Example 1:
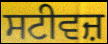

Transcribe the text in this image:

ਸਟੀਵਜ਼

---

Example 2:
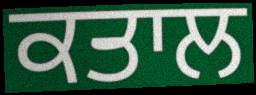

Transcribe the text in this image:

ਕਤਾਲ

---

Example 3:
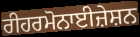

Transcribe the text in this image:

ਰੀਹਰਮੋਨਾਈਜ਼ੇਸ਼ਨ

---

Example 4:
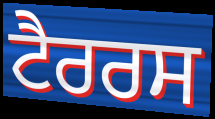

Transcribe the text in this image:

ਟੈਰਰਸ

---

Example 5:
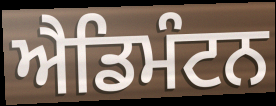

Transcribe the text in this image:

ਐਡਿਮੰਟਨ